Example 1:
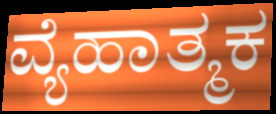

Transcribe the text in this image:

ವ್ಯೆಹಾತ್ಮಕ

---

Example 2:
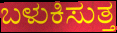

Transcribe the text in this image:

ಬಳುಕಿಸುತ್ತ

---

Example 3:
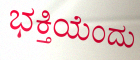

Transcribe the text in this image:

ಭಕ್ತಿಯೆಂದು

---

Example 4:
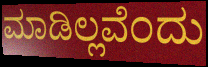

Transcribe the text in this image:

ಮಾಡಿಲ್ಲವೆಂದು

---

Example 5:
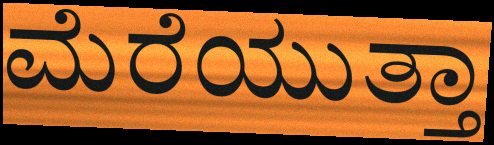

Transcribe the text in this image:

ಮೆರೆಯುತ್ತಾ